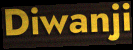
Diwanji